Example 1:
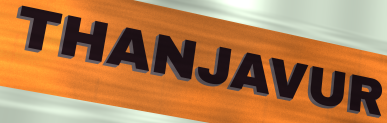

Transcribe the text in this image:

THANJAVUR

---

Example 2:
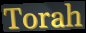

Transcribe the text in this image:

Torah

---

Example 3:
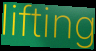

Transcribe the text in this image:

lifting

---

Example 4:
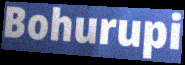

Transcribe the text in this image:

Bohurupi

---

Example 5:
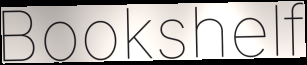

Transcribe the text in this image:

Bookshelf